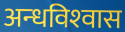
अन्‍धविश्‍वास